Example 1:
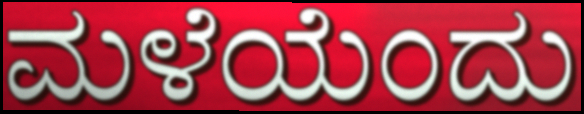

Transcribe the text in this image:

ಮಳೆಯೆಂದು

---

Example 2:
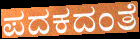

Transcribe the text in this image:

ಪದಕದಂತೆ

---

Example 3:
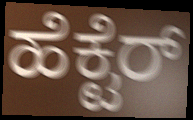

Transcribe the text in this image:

ಹೆಕ್ಟೆರ್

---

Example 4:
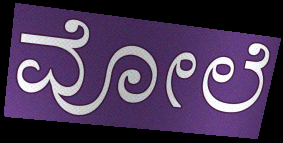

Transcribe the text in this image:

ವೋಲೆ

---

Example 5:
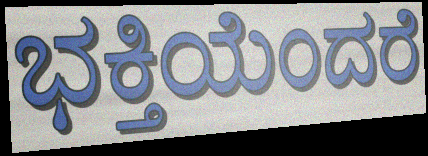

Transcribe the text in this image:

ಭಕ್ತಿಯೆಂದರೆ